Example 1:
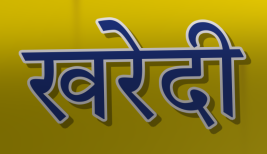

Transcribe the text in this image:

खरेदी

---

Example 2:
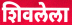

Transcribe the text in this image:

शिवलेला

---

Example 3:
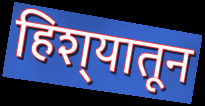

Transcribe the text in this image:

हिश्यातून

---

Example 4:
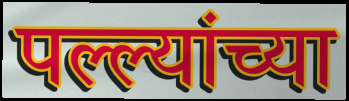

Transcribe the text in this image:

पल्ल्यांच्या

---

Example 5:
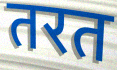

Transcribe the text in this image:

तरत